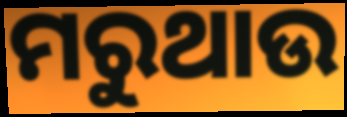
ମରୁଥାଉ